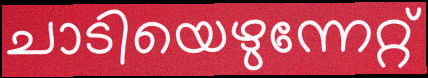
ചാടിയെഴുന്നേറ്റ്